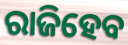
ରାଜିହେବ